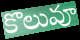
కొలువూ